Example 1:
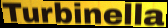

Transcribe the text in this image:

Turbinella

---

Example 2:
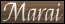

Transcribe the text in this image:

Marai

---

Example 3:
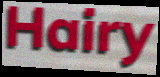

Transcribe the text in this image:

Hairy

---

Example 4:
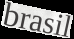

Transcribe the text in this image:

brasil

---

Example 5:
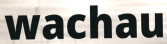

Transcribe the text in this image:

wachau